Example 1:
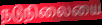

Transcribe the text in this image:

நடுநிலையை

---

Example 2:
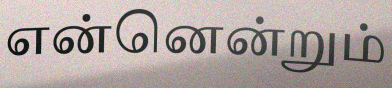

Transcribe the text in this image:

என்னென்றும்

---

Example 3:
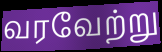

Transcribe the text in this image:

வரவேற்று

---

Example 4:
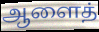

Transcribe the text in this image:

ஆளைத்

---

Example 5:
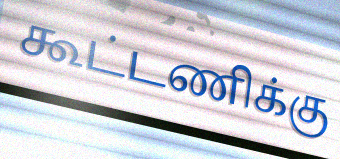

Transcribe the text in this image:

கூட்டணிக்கு